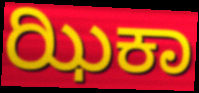
ಝಿಕಾ